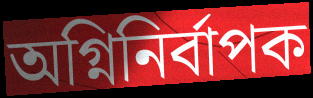
অগ্নিনিৰ্বাপক